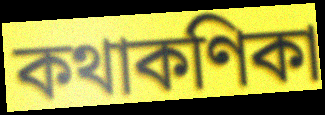
কথাকণিকা